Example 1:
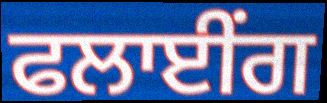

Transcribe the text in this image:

ਫਲਾਈਂਗ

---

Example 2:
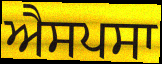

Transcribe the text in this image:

ਐਸਪਸਾ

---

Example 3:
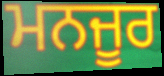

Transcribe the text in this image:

ਮਨਜੂਰ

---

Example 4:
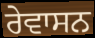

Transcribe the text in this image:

ਰੇਵਾਸਨ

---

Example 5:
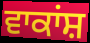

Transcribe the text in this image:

ਵਾਕਾਂਸ਼